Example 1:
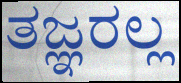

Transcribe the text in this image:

ತಜ್ಞರಲ್ಲ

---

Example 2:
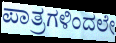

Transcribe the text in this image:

ಪಾತ್ರಗಳಿಂದಲೇ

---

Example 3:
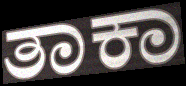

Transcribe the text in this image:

ತಾಕಾ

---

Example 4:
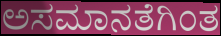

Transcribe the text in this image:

ಅಸಮಾನತೆಗಿಂತ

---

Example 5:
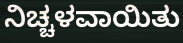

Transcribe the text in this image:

ನಿಚ್ಚಳವಾಯಿತು